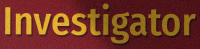
Investigator